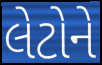
લેટોને